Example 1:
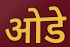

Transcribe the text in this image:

ओडे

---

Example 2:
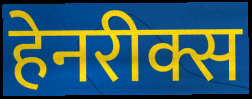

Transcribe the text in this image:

हेनरीक्स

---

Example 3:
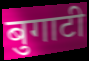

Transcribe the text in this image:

बुगाटी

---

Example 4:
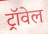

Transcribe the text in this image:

ट्रॉवेल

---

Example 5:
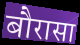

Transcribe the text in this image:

बौरासा